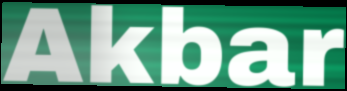
Akbar